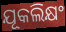
ଯୂକଲିକ୍ଷଂ